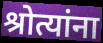
श्रोत्यांना